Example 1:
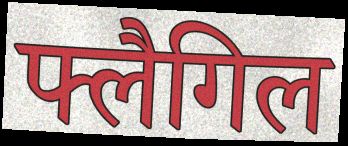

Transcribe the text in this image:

फ्लैगिल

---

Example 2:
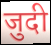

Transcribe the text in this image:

जुदी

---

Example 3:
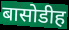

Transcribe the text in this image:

बासोडीह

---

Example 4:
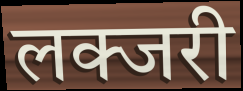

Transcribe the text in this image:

लक्‍जरी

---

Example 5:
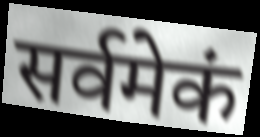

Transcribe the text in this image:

सर्वमेकं